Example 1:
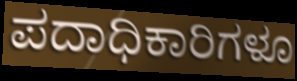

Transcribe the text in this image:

ಪದಾಧಿಕಾರಿಗಳೂ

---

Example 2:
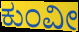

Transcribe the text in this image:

ಕುಂವೀ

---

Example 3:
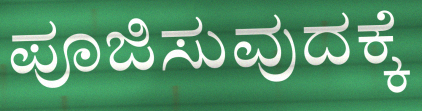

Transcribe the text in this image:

ಪೂಜಿಸುವುದಕ್ಕೆ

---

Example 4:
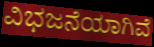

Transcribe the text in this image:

ವಿಭಜನೆಯಾಗಿವೆ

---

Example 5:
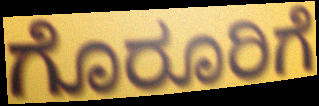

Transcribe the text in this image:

ಗೊರೂರಿಗೆ